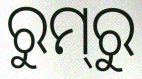
ରୁମ୍‌ରୁ